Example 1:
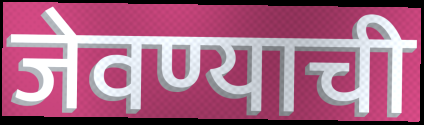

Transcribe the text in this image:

जेवण्याची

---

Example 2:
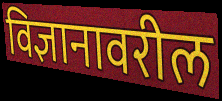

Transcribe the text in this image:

विज्ञानावरील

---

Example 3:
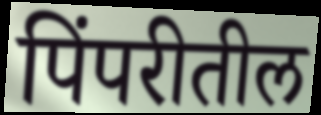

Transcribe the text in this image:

पिंपरीतील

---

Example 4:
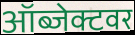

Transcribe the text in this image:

ऑब्जेक्टवर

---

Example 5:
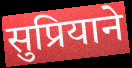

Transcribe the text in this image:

सुप्रियाने